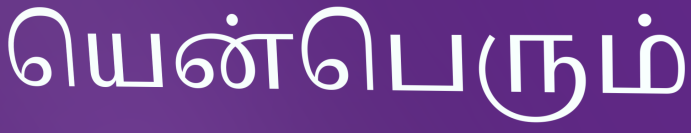
யென்பெரும்